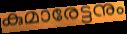
കുമാരേട്ടനും